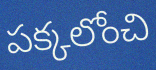
పక్కలోంచి